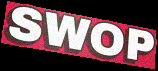
SWOP